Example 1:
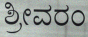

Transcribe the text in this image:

ಶ್ರೀವರಂ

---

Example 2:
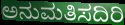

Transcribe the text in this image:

ಅನುಮತಿಸದಿರಿ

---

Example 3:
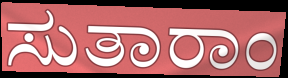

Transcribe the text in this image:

ಸುತಾರಾಂ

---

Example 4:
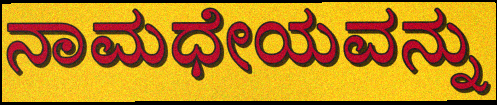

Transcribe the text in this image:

ನಾಮಧೇಯವನ್ನು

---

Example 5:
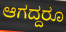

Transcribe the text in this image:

ಆಗದ್ದರೂ